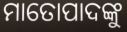
ମାତୋପାଦଙ୍କୁ